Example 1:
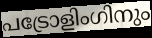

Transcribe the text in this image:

പട്രോളിംഗിനും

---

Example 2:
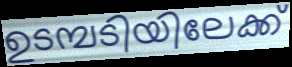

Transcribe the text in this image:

ഉടമ്പടിയിലേക്ക്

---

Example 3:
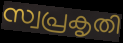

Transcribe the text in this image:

സ്വപ്രകൃതി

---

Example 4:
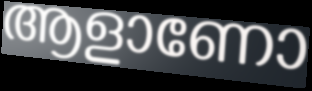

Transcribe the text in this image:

ആളാണോ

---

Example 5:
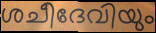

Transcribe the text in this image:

ശചീദേവിയും